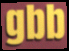
gbb